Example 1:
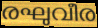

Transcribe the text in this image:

രഘുവീര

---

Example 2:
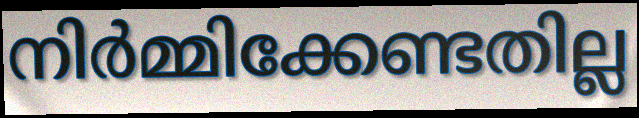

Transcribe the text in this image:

നിർമ്മിക്കേണ്ടതില്ല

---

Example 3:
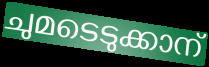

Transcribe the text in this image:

ചുമടെടുക്കാന്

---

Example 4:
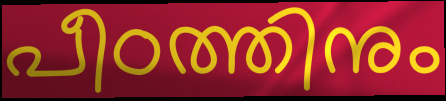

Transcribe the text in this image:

പീഠത്തിനും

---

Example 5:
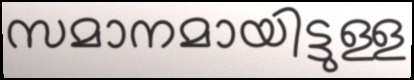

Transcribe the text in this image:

സമാനമായിട്ടുള്ള